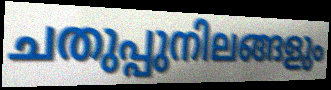
ചതുപ്പുനിലങ്ങളും